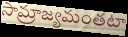
సామ్రాజ్యమంతటా